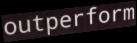
outperform